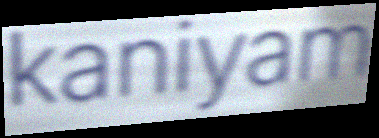
kaniyam